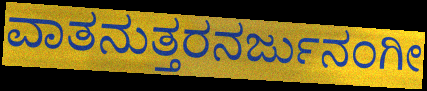
ವಾತನುತ್ತರನರ್ಜುನಂಗೀ